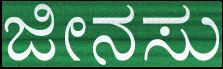
ಜೀನಸು